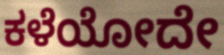
ಕಳೆಯೋದೇ